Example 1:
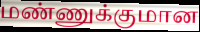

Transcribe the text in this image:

மண்ணுக்குமான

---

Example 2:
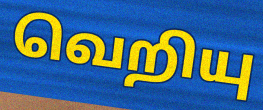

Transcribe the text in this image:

வெறியு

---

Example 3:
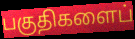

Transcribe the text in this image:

பகுதிகளைப்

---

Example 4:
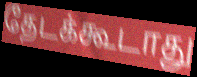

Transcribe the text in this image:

தேடக்கூடாது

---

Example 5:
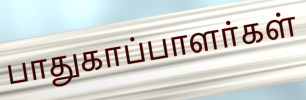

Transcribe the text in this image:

பாதுகாப்பாளர்கள்